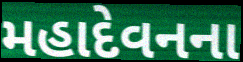
મહાદેવનના